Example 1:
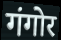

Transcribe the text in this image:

गंगोर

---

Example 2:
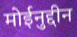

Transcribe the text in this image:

मोईनुद्दीन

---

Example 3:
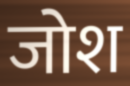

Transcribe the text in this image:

जोश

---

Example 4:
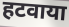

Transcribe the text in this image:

हटवाया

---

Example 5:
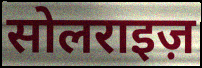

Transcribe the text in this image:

सोलराइज़